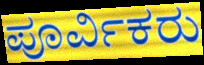
ಪೂರ್ವಿಕರು